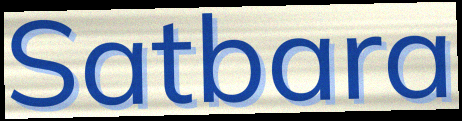
Satbara